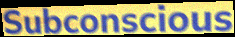
Subconscious